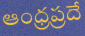
ఆంధ్రప్రదే